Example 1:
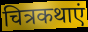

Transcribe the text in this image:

चित्रकथाएं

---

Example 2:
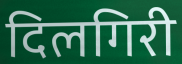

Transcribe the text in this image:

दिलगिरी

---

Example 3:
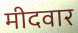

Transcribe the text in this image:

मीदवार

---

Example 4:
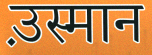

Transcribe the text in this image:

उ़स्मान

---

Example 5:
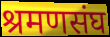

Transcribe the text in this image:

श्रमणसंघ